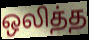
ஒலித்த